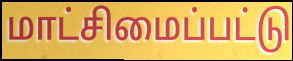
மாட்சிமைப்பட்டு